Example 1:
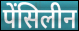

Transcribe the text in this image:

पेंसिलीन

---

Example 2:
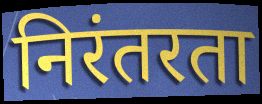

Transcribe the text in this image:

निरंतरता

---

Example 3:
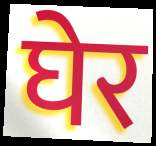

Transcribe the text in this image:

घेर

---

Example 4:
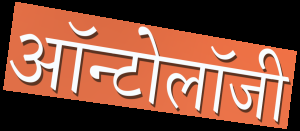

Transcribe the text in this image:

ऑन्टोलॉजी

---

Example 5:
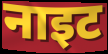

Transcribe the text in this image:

नाइट